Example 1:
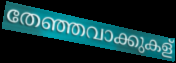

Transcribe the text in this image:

തേഞ്ഞവാക്കുകള്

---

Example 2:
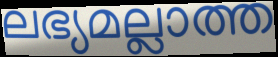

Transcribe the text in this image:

ലഭ്യമല്ലാത്ത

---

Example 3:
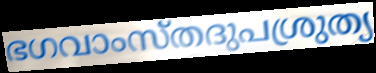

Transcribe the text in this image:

ഭഗവാംസ്തദുപശ്രുത്യ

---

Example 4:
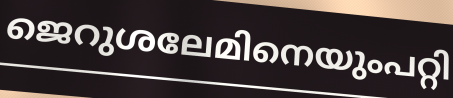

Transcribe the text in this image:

ജെറുശലേമിനെയുംപറ്റി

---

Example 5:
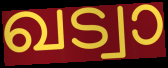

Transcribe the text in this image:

ഖട്വാ